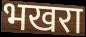
भखरा